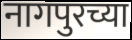
नागपुरच्या